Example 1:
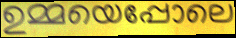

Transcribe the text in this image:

ഉമ്മയെപ്പോലെ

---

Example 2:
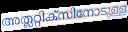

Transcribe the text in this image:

അത്ലറ്റിക്സിനോടുള്ള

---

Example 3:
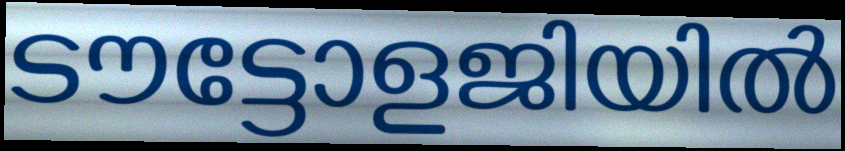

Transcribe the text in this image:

ടൗട്ടോളജിയിൽ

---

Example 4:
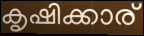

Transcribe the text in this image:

കൃഷിക്കാര്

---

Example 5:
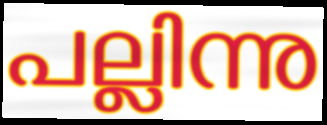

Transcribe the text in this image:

പല്ലിന്നു